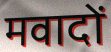
मवादों